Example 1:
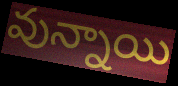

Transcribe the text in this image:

వున్నాయి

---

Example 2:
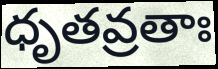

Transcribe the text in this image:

ధృతవ్రతాః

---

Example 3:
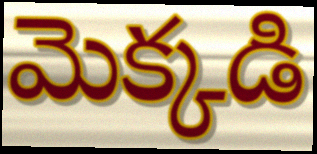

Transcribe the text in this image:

మెక్కడి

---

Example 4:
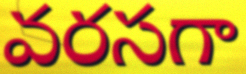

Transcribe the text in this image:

వరసగా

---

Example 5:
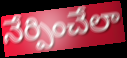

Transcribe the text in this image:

నేర్పించేలా